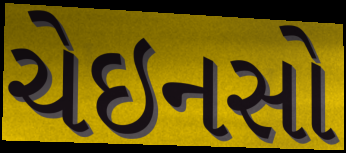
ચેઇનસો